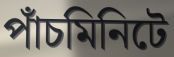
পাঁচমিনিটে